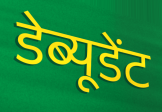
डेब्यूडेंट